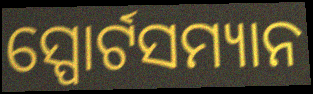
ସ୍ପୋର୍ଟସମ୍ୟାନ